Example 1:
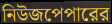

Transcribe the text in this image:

নিউজপেপারের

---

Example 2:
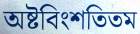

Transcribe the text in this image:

অষ্টবিংশতিতম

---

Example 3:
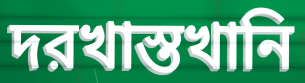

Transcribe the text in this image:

দরখাস্তখানি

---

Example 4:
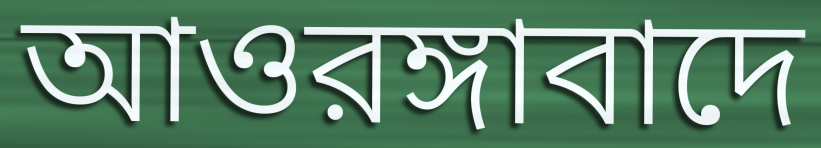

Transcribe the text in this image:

আওরঙ্গাবাদে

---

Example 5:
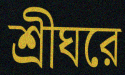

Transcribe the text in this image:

শ্রীঘরে